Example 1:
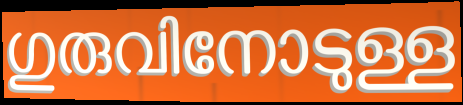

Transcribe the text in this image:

ഗുരുവിനോടുള്ള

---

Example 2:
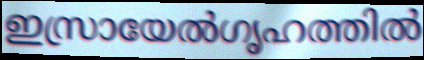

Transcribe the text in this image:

ഇസ്രായേൽഗൃഹത്തിൽ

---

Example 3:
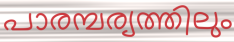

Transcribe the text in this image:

പാരമ്പര്യത്തിലും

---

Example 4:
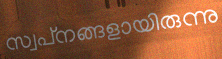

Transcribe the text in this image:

സ്വപ്‌നങ്ങളായിരുന്നു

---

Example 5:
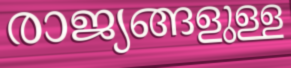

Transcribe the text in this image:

രാജ്യങ്ങളുള്ള